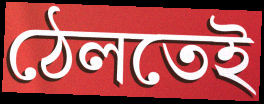
ঠেলতেই